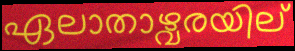
ഏലാതാഴ്വരയില്